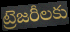
ట్రెజరీలకు